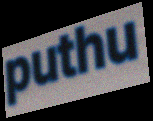
puthu